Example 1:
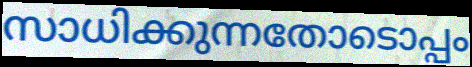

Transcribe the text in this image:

സാധിക്കുന്നതോടൊപ്പം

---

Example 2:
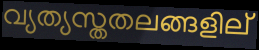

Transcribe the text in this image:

വ്യത്യസ്തതലങ്ങളില്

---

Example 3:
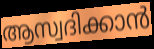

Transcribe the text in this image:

ആസ്വദിക്കാൻ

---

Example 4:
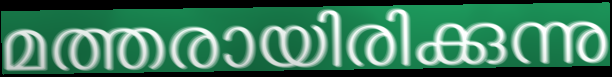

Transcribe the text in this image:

മത്തരായിരിക്കുന്നു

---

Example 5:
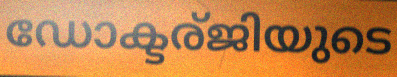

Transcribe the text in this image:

ഡോക്ടര്ജിയുടെ